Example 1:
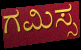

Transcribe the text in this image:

ಗಮಿಸ್ಸ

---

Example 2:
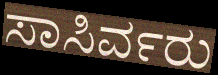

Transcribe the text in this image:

ಸಾಸಿರ್ವರು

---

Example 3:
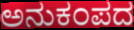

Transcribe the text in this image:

ಅನುಕಂಪದ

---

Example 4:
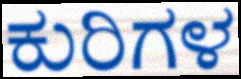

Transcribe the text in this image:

ಕುರಿಗಳ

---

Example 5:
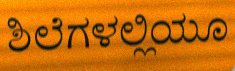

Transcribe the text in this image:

ಶಿಲೆಗಳಲ್ಲಿಯೂ